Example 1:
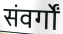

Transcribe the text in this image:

संवर्गों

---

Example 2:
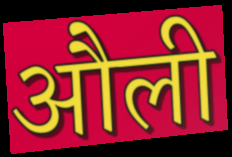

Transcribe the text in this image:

औली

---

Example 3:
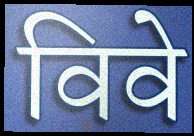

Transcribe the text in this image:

विवे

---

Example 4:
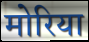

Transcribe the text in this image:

मोरिया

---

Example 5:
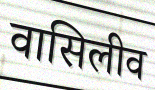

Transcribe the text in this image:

वासिलीव